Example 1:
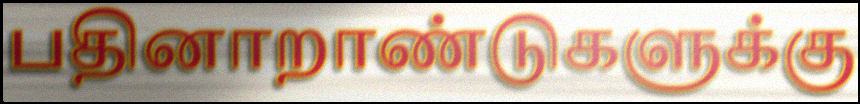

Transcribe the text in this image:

பதினாறாண்டுகளுக்கு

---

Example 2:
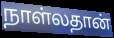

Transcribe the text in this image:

நாள்லதான்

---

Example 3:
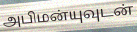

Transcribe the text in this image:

அபிமன்யுவுடன்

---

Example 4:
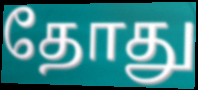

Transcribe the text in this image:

தோது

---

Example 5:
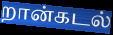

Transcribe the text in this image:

றான்கடல்